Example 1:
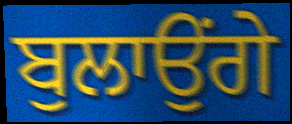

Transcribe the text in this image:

ਬੁਲਾਉਂਗੇ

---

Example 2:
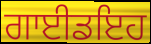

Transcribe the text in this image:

ਗਾਈਡਇਹ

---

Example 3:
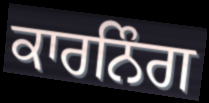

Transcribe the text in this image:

ਕਾਰਨਿੰਗ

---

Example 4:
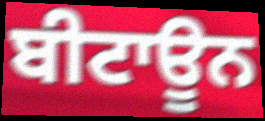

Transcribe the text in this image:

ਬੀਟਾਊਨ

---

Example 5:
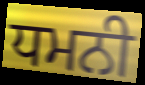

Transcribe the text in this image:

ਧਮਨੀ